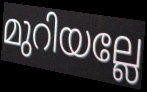
മുറിയല്ലേ